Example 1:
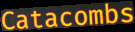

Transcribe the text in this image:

Catacombs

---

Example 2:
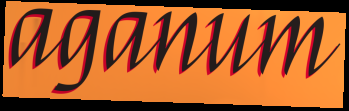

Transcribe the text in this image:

aganum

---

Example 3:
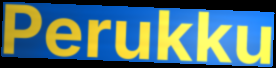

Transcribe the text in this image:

Perukku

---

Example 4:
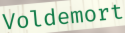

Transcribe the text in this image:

Voldemort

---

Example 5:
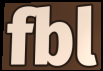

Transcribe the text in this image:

fbl